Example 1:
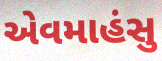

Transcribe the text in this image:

એવમાહંસુ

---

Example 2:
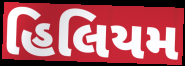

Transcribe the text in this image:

હિલિયમ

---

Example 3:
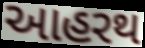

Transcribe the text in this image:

આહરથ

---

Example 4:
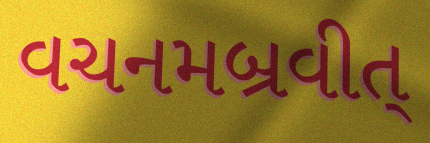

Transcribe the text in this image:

વચનમબ્રવીત્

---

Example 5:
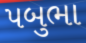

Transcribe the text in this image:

પબુભા